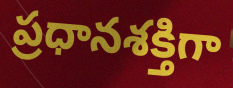
ప్రధానశక్తిగా